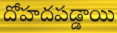
దోహదపడ్డాయి